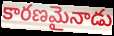
కారణమైనాడు